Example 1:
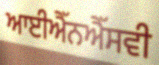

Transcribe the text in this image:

ਆਈਐੱਨਐੱਸਵੀ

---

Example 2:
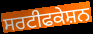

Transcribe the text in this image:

ਸਰਟੀਫਕੇਸ਼ਨ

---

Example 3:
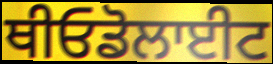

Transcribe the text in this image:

ਥੀਓਡੋਲਾਈਟ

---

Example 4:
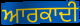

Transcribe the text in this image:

ਆਰਕਾਦੀ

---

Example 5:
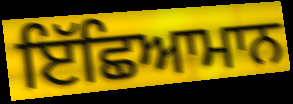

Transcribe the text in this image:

ਇੱਛਿਆਮਾਨ